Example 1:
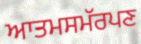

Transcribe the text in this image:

ਆਤਮਸਮੱਰਪਣ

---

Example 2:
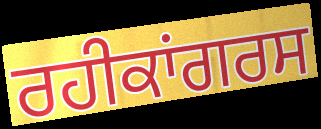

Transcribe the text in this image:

ਰਹੀਕਾਂਗਰਸ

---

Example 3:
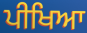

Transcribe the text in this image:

ਪੀਖਿਆ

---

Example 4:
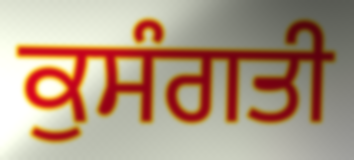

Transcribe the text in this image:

ਕੁਸੰਗਤੀ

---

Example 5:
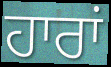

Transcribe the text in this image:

ਹਾਰਾਂ